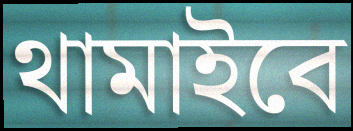
থামাইবে